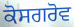
ਕੋਸਗਰੋਵ